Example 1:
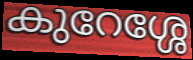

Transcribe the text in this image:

കുറേശ്ശേ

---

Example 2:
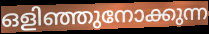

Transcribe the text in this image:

ഒളിഞ്ഞുനോക്കുന്ന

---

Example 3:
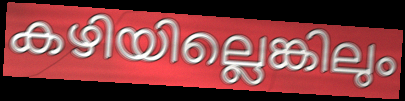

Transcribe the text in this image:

കഴിയില്ലെങ്കിലും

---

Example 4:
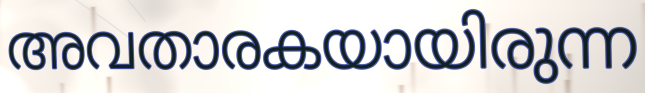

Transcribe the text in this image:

അവതാരകയായിരുന്ന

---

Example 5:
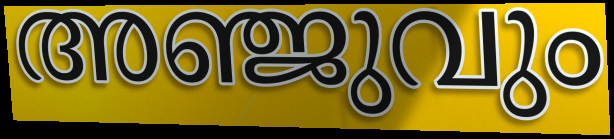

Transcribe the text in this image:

അഞ്ജുവും